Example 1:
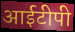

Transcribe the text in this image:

आईटीपी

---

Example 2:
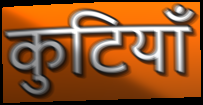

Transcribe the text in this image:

कुटियाँ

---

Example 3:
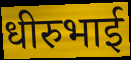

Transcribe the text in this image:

धीरुभाई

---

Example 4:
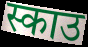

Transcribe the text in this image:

स्काउ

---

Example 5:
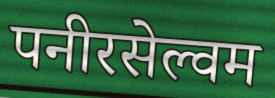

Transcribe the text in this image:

पनीरसेल्वम